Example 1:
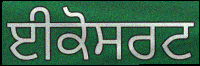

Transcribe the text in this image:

ਈਕੋਸਰਟ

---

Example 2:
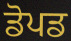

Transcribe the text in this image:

ਡੋਪਡ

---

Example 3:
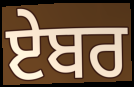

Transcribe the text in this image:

ਏਬਰ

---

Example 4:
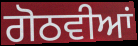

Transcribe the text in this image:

ਗੋਠਵੀਆਂ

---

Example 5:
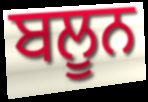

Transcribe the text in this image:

ਬਲੂਨ